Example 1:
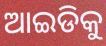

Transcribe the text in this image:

ଆଇଡିକୁ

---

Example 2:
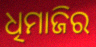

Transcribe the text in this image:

ଧିମାଜିର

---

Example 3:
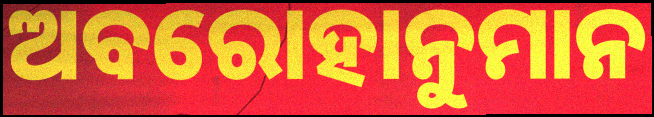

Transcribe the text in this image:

ଅବରୋହାନୁମାନ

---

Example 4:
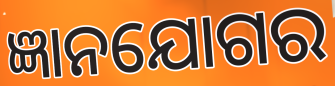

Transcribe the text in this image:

ଜ୍ଞାନଯୋଗର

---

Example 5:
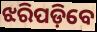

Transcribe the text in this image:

ଝରିପଡ଼ିବେ